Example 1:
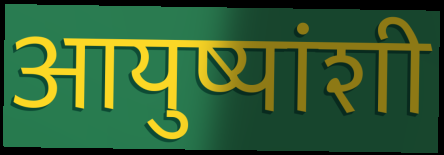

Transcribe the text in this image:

आयुष्यांशी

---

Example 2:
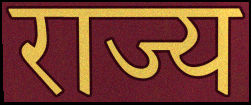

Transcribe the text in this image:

राज्य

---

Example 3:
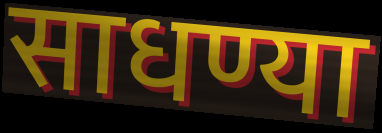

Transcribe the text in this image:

साधण्या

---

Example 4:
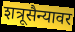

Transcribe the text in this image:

शत्रूसैन्यावर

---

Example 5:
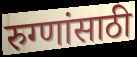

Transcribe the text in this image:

रुग्णांसाठी